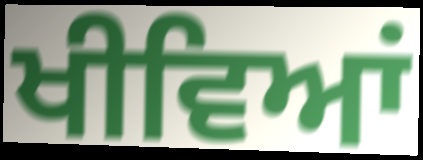
ਖੀਵਿਆਂ